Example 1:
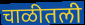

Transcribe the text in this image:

चाळीतली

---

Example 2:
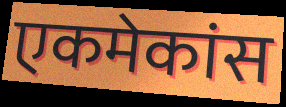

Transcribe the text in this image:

एकमेकांस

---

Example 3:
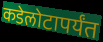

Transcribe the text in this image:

कडेलोटापर्यंत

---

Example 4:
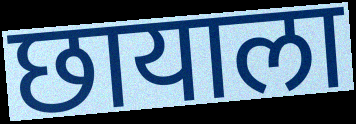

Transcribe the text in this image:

छायाला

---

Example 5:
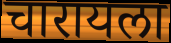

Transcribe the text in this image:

चारायला